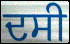
ਦਸੀ